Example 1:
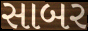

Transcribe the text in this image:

સાબર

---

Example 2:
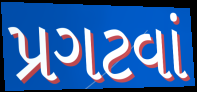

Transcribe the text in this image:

પ્રગટવાં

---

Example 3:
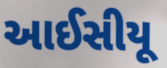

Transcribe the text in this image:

આઈસીયૂ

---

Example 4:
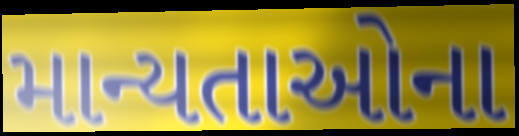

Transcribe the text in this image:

માન્યતાઓના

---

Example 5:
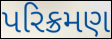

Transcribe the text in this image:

પરિક્રમણ